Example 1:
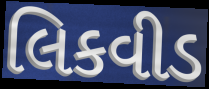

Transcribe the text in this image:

લિકવીડ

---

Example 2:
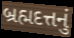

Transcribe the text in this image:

બ્રહ્મદત્તનું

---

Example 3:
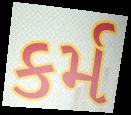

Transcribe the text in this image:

કર્મ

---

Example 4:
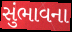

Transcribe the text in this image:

સુંભાવના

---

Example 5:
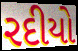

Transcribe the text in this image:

રદીયો